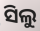
ସିଲୁ